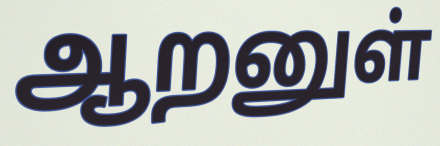
ஆறனுள்